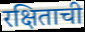
रक्षिताची